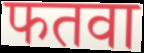
फतवा